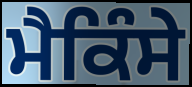
ਮੈਕਿੰਸੇ